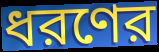
ধরণের